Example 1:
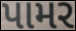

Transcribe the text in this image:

પામર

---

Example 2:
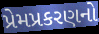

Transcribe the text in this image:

પ્રેમપ્રકરણનો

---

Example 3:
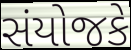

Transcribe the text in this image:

સંયોજકે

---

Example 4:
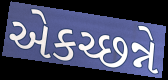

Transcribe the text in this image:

એકચ્છન્ને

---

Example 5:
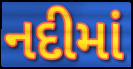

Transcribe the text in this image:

નદીમાં